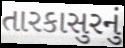
તારકાસુરનું